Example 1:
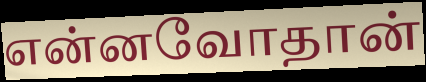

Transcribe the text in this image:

என்னவோதான்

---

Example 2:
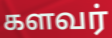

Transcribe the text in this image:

களவர்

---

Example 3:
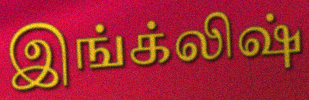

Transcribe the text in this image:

இங்க்லிஷ்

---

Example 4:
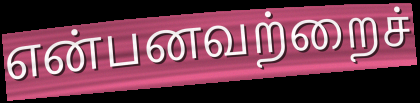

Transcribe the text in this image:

என்பனவற்றைச்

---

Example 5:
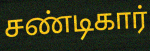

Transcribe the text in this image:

சண்டிகார்